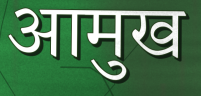
आमुख